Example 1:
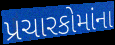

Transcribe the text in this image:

પ્રચારકોમાંના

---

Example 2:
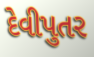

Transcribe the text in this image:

દેવીપુતર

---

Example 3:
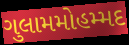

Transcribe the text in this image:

ગુલામમોહમ્મદ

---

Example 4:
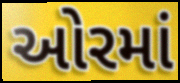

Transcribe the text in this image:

ઓરમાં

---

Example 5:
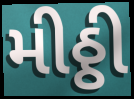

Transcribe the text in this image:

મીઠ્ઠી